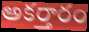
అకర్తారం